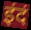
इंदं